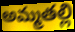
అమ్మతల్లి